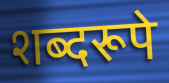
शब्दरूपे